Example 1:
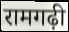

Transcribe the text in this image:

रामगढ़ी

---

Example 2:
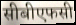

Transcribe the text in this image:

सीबीएफसी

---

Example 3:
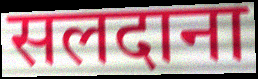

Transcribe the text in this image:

सलदाना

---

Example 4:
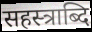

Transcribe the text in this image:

सहस्त्राब्दि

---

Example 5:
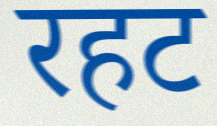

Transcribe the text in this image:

रहट